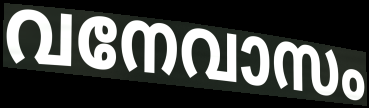
വനേവാസം